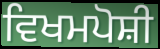
ਵਿਖਮਪੋਸ਼ੀ